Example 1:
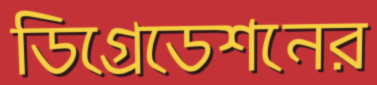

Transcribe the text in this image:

ডিগ্রেডেশনের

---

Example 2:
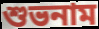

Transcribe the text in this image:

শুভনাম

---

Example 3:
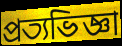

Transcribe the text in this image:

প্রত্যভিজ্ঞা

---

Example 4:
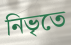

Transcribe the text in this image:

নিভৃতে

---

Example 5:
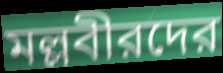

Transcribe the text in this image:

মল্লবীরদের